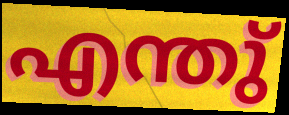
എന്തു്